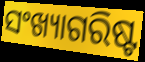
ସଂଖ୍ୟାଗରିଷ୍ଟ